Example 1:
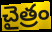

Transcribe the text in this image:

చైత్రం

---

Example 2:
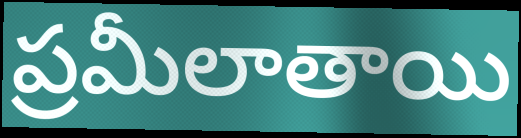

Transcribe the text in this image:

ప్రమీలాతాయి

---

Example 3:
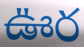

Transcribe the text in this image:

ఊర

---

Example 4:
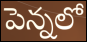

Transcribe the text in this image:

పెన్నలో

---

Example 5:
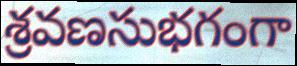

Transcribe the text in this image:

శ్రవణసుభగంగా